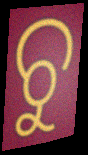
ଚୁ